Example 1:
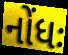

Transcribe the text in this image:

નોંધઃ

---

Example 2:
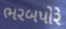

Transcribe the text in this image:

ભરબપોરે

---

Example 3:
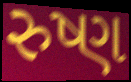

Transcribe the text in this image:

રુષ્ણ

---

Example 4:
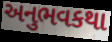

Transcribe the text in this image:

અનુભવકથા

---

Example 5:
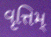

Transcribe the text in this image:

વૃત્તિમ્